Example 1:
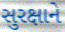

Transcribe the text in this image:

સુરક્ષાને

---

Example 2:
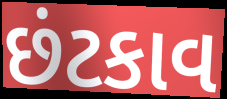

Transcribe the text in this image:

છંટકાવ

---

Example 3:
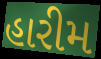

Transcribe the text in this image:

હારીમ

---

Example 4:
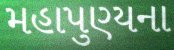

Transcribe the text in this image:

મહાપુણ્યના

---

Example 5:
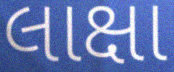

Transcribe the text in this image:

લાક્ષા